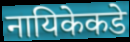
नायिकेकडे